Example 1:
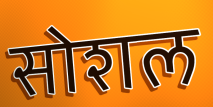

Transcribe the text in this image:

सोशल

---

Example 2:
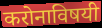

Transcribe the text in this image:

करोनाविषयी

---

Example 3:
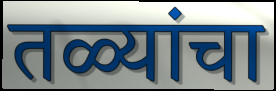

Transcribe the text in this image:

तळ्यांचा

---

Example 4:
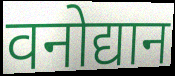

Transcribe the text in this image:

वनोद्यान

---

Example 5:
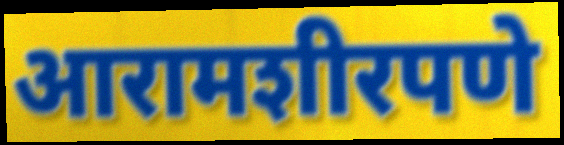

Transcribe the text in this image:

आरामशीरपणे